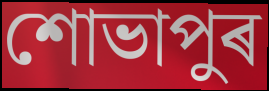
শোভাপুৰ